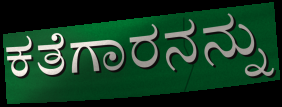
ಕತೆಗಾರನನ್ನು